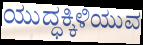
ಯುದ್ಧಕ್ಕಿಳಿಯುವ